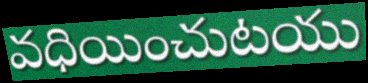
వధియించుటయు